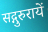
सद्गुरुरायें